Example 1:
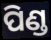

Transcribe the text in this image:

ପିଣ୍ଡ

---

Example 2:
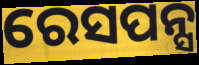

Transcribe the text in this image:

ରେସପନ୍ସ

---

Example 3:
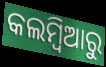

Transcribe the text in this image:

କଲମ୍ବିଆରୁ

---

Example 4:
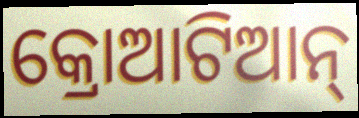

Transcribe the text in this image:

କ୍ରୋଆଟିଆନ୍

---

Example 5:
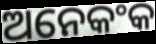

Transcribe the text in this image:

ଅନେକଂକ